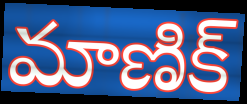
మాణిక్